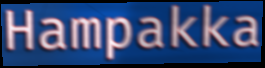
Hampakka